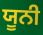
ਯੂਨੀ